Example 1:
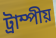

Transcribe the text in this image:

ট্রাম্পীয়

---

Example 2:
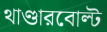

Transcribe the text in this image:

থাণ্ডারবোল্ট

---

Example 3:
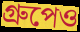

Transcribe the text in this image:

গ্রুপেও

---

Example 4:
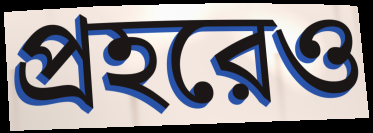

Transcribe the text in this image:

প্রহরেও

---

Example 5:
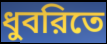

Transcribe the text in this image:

ধুবরিতে